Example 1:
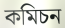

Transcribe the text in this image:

কমিচন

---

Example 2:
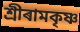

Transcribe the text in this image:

শ্ৰীৰামকৃষ্ণ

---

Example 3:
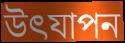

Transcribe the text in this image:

উৎযাপন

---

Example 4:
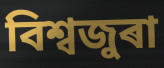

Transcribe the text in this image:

বিশ্বজুৰা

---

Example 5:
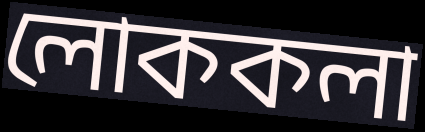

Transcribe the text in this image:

লোককলা